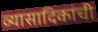
व्यासादिकांची